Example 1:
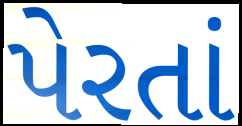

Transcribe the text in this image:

પેરતાં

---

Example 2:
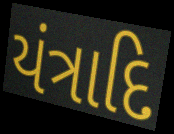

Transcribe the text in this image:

યંત્રાદિ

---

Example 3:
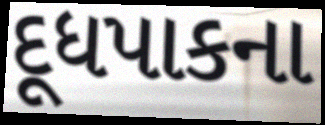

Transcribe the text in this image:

દૂધપાકના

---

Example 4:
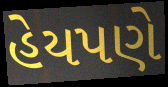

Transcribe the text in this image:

હેયપણે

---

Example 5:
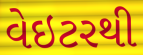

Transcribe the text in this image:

વેઇટરથી